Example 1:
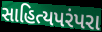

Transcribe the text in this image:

સાહિત્યપરંપરા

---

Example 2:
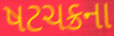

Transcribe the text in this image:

ષટચક્રના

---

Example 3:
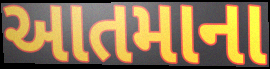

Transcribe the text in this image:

આતમાના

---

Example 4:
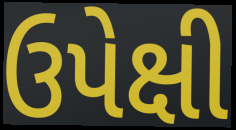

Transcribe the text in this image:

ઉપેક્ષી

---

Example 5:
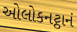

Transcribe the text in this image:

ઓલોકનટ્ઠાનં